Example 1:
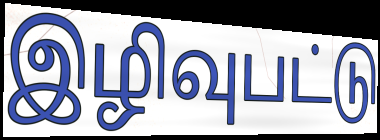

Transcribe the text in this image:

இழிவுபட்டு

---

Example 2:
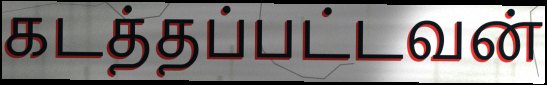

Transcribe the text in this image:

கடத்தப்பட்டவன்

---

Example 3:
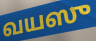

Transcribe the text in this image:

வயஸு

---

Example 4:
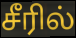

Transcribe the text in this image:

சீரில்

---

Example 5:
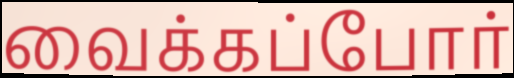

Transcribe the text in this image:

வைக்கப்போர்